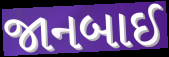
જાનબાઈ